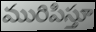
మురిపిస్తూ